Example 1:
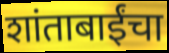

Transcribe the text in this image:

शांताबाईंचा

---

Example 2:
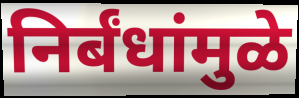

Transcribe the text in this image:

निर्बंधांमुळे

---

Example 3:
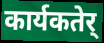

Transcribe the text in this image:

कार्यकतेर्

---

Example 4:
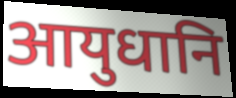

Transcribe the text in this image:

आयुधानि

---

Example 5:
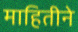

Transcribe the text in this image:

माहितीने